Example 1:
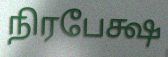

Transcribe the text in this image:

நிரபேக்ஷ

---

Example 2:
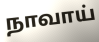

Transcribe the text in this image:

நாவாய்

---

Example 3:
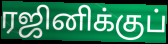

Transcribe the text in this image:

ரஜினிக்குப்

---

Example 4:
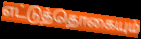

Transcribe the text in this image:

எட்டுத்தொகையும்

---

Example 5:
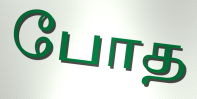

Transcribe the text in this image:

போத